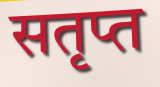
सतृप्त